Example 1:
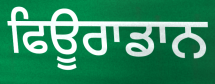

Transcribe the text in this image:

ਫਿਊਰਾਡਾਨ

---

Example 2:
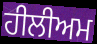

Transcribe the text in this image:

ਹੀਲੀਅਮ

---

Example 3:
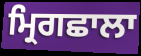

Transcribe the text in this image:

ਮ੍ਰਿਗਛਾਲਾ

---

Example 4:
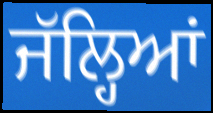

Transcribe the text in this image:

ਜੱਲ੍ਹਿਆਂ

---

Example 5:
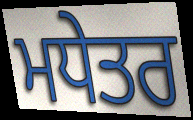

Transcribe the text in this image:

ਮਧੇਤਰ